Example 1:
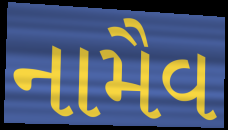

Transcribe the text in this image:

નામૈવ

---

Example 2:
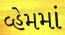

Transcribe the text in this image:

વ્હેમમાં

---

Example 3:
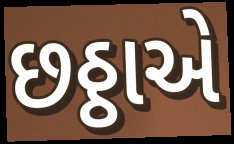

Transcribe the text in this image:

છઠ્ઠાએ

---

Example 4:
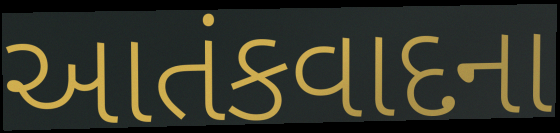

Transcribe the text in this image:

આતંકવાદના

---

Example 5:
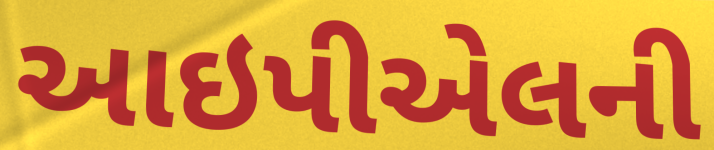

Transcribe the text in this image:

આઇપીએલની